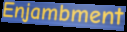
Enjambment